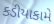
કડીયાકામે